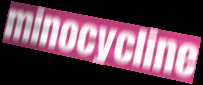
minocycline